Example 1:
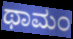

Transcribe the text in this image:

ಥಾಮಂ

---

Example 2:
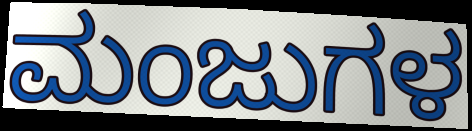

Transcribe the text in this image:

ಮಂಜುಗಳ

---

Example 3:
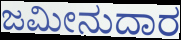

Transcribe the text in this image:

ಜಮೀನುದಾರ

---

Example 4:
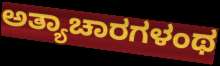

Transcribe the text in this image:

ಅತ್ಯಾಚಾರಗಳಂಥ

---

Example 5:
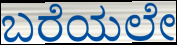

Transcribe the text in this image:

ಬರೆಯಲೇ